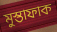
মুস্তাফাক